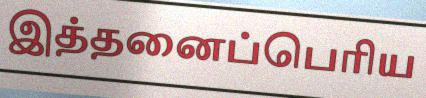
இத்தனைப்பெரிய